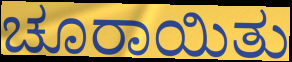
ಚೂರಾಯಿತು